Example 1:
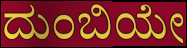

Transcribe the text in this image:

ದುಂಬಿಯೇ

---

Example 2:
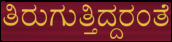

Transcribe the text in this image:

ತಿರುಗುತ್ತಿದ್ದರಂತೆ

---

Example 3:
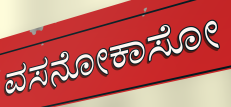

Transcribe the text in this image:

ವಸನೋಕಾಸೋ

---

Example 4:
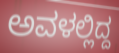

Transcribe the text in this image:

ಅವಳಲ್ಲಿದ್ದ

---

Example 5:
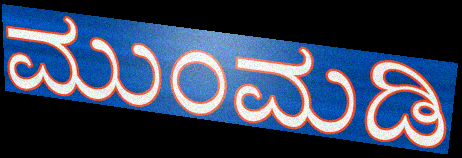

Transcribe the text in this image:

ಮುಂಮಡಿ